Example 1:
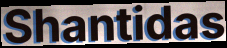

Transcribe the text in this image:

Shantidas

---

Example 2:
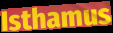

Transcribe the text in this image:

Isthamus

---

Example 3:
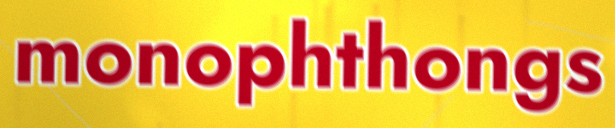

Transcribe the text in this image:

monophthongs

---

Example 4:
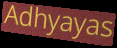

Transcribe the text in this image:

Adhyayas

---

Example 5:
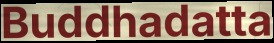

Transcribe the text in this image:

Buddhadatta